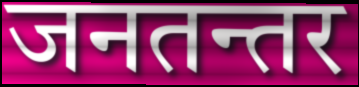
जनतन्तर